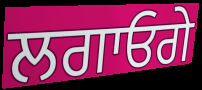
ਲਗਾਓਗੇ